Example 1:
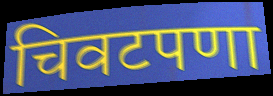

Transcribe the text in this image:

चिवटपणा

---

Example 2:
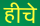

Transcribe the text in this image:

हीचे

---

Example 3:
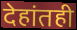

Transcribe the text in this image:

देहांतही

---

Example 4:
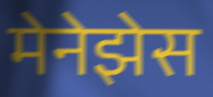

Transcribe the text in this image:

मेनेझेस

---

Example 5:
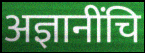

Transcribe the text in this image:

अज्ञानींचि